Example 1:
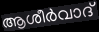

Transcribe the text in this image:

ആശീർവാദ്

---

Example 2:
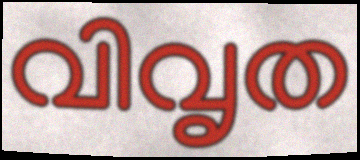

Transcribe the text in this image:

വിവൃത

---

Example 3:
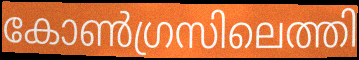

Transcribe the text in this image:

കോൺഗ്രസിലെത്തി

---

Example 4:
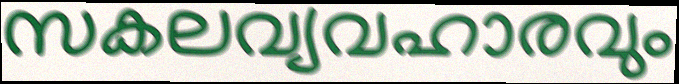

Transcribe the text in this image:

സകലവ്യവഹാരവും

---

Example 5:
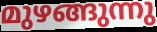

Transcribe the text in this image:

മുഴങ്ങുന്നു